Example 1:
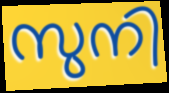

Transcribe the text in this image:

സുനി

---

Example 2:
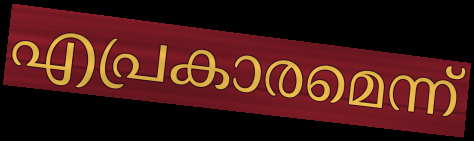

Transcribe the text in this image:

എപ്രകാരമെന്ന്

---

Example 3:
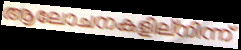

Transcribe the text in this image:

ആലോചനകളില്നിന്ന്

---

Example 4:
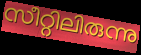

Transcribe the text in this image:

സീറ്റിലിരുന്നു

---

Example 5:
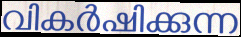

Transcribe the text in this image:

വികർഷിക്കുന്ന